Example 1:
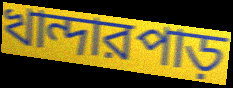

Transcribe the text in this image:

খান্দারপাড়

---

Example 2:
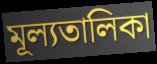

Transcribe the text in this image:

মূল্যতালিকা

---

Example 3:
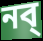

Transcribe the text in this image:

নব্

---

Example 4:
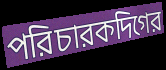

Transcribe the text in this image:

পরিচারকদিগের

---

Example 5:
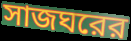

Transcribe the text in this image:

সাজঘরের